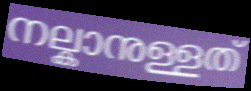
നല്കാനുള്ളത്